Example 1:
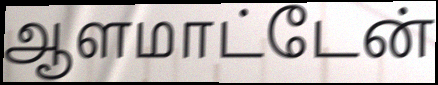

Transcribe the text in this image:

ஆளமாட்டேன்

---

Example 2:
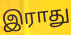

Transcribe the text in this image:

இராது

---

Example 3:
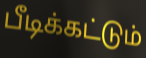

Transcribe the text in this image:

பீடிக்கட்டும்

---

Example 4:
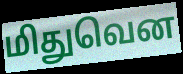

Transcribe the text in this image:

மிதுவென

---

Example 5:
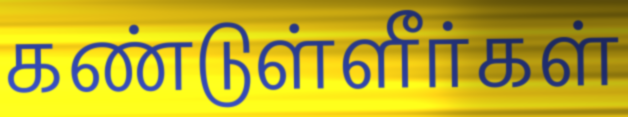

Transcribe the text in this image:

கண்டுள்ளீர்கள்